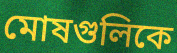
মোষগুলিকে